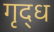
गृद्ध